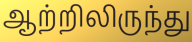
ஆற்றிலிருந்து